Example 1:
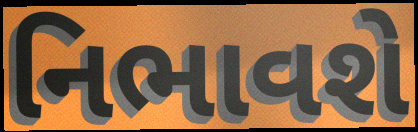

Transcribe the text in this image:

નિભાવશે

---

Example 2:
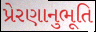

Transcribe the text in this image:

પ્રેરણાનુભૂતિ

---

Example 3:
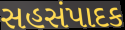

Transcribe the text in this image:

સહસંપાદક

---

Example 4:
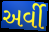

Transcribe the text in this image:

અર્વી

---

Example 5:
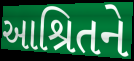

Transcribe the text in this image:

આશ્રિતને